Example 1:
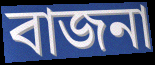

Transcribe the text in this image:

বাজনা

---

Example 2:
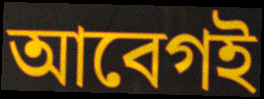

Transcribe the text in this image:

আবেগই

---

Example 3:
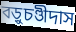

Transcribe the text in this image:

বড়ুচণ্ডীদাস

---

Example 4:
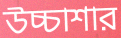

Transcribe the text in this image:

উচ্চাশার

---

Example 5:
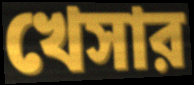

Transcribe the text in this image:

খেসার